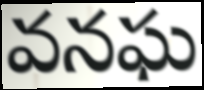
వనఘ